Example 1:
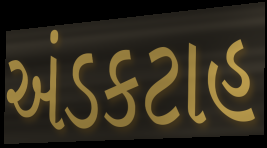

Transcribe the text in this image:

અંડકટાહ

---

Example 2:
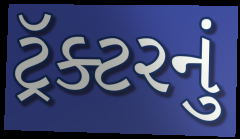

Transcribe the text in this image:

ટ્રૅક્ટરનું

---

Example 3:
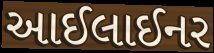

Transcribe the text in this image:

આઈલાઈનર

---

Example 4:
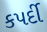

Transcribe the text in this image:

કપર્દી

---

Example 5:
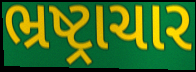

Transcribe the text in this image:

ભ્રષ્ટ્રાચાર